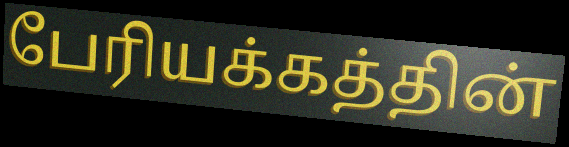
பேரியக்கத்தின்